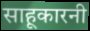
साहूकारनी